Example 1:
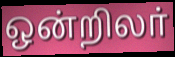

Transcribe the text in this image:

ஒன்றிலர்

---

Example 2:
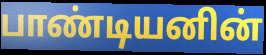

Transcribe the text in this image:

பாண்டியனின்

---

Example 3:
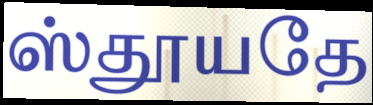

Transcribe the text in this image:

ஸ்தூயதே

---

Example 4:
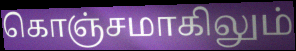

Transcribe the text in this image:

கொஞ்சமாகிலும்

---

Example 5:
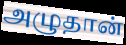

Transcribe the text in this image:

அழுதான்